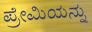
ಪ್ರೇಮಿಯನ್ನು